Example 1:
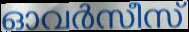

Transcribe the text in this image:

ഓവർസീസ്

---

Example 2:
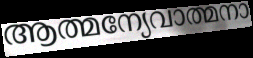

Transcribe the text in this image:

ആത്മന്യേവാത്മനാ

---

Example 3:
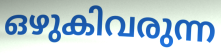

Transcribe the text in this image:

ഒഴുകിവരുന്ന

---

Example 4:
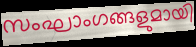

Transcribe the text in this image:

സംഘാംഗങ്ങളുമായി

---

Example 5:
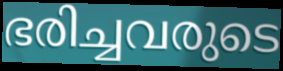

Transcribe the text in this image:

ഭരിച്ചവരുടെ